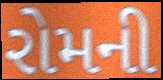
રોમની